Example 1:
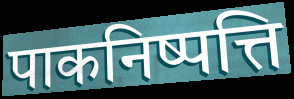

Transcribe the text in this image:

पाकनिष्पत्ति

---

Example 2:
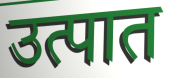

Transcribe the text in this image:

उत्पात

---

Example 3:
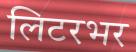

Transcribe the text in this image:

लिटरभर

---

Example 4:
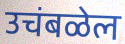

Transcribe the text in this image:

उचंबळेल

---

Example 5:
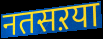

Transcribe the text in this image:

नतसऱया